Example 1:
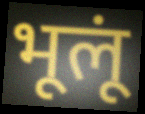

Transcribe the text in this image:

भूलूं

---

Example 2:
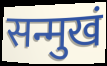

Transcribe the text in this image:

सन्मुखं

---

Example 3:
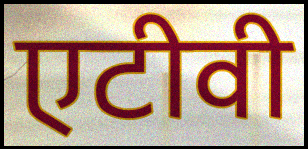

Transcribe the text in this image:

एटीवी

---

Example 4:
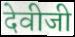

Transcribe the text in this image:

देवीजी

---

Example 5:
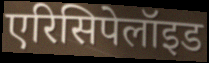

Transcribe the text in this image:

एरिसिपेलॉइड